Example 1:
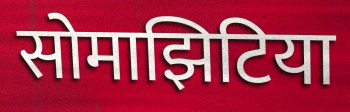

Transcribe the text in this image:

सोमाझिटिया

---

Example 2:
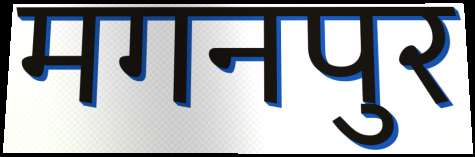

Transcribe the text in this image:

मगनपुर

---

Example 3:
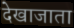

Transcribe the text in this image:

देखाजाता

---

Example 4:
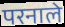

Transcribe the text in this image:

परनाले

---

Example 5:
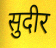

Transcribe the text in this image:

सुदीर